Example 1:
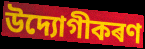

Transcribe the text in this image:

উদ্যোগীকৰণ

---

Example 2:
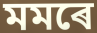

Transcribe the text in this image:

মমৰে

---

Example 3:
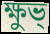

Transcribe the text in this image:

ক্ষুভ্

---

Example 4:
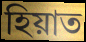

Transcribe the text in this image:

হিয়াত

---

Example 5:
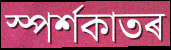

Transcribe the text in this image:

স্পৰ্শকাতৰ